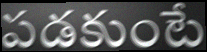
పడకుంటే